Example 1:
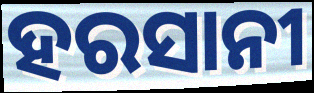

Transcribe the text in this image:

ହରସାନୀ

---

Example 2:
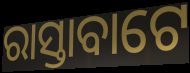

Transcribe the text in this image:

ରାସ୍ତାବାଟେ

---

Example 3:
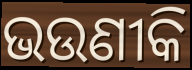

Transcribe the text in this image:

ଭଉଣୀକି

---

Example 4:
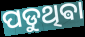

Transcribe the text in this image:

ପଡୁଥିଵା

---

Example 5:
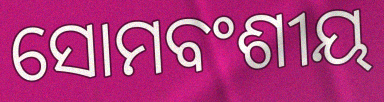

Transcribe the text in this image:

ସୋମବଂଶୀୟ